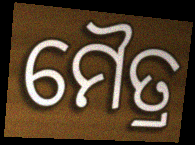
ମୈତ୍ର